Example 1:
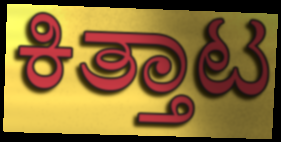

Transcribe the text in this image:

ಕಿತ್ತಾಟ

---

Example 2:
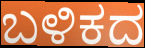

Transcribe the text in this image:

ಬಳಿಕದ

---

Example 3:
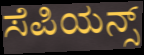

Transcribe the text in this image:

ಸೆಪಿಯನ್ಸ್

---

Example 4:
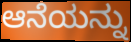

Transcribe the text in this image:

ಆನೆಯನ್ನು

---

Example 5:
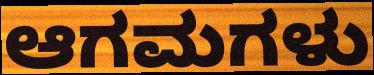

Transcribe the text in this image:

ಆಗಮಗಳು